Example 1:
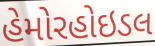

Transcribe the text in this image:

હેમોરહોઇડલ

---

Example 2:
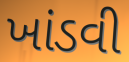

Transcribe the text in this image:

ખાંડવી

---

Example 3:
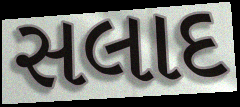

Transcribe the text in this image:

સલાદ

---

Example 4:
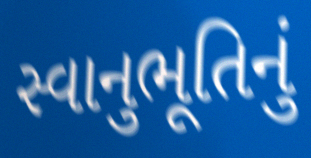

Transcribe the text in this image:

સ્વાનુભૂતિનું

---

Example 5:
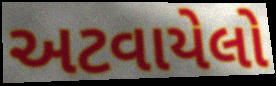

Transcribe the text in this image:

અટવાયેલો